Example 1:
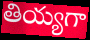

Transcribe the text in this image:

తియ్యగా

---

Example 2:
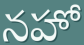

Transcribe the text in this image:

నహో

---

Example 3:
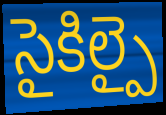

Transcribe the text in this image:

సైకిల్పై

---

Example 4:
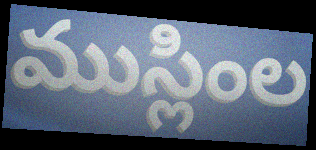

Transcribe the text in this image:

ముస్లింల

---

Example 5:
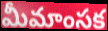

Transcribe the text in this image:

మీమాంసక